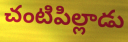
చంటిపిల్లాడు